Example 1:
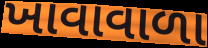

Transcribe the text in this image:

ખાવાવાળા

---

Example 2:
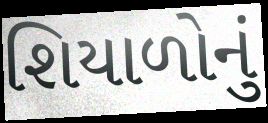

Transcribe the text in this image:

શિયાળોનું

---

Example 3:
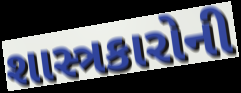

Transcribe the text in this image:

શાસ્ત્રકારોની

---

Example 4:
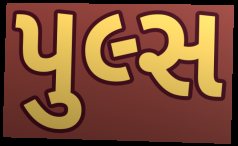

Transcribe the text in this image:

પુલ્સ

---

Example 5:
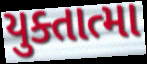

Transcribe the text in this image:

યુક્તાત્મા